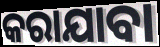
କରାଯାବା